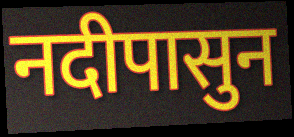
नदीपासुन